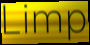
Limp